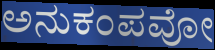
ಅನುಕಂಪವೋ